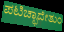
ಪಟಿಚ್ಛಾದೇತುಂ